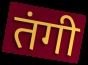
तंगी